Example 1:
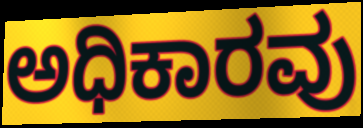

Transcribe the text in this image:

ಅಧಿಕಾರವು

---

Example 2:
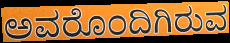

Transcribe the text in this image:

ಅವರೊಂದಿಗಿರುವ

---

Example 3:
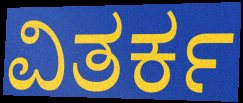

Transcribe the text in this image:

ವಿತರ್ಕ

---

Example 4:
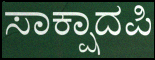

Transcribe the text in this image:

ಸಾಕ್ಷಾದಪಿ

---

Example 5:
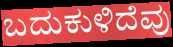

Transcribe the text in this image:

ಬದುಕುಳಿದೆವು